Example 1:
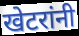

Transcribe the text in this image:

खेटरांनी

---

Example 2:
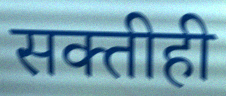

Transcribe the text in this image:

सक्तीही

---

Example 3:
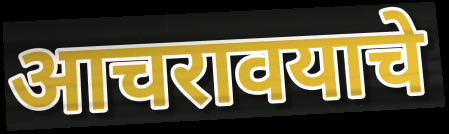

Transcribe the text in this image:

आचरावयाचे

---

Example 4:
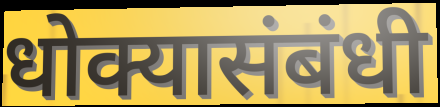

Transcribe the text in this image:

धोक्यासंबंधी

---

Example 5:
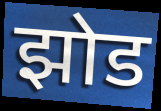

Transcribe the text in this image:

झोड